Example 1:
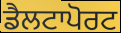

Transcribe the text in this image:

ਡੈਲਟਾਪੋਰਟ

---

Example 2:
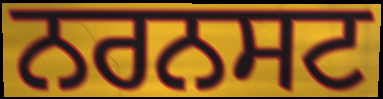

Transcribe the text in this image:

ਨਰਨਸਟ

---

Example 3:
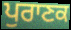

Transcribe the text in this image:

ਪੁਰਾਣਕ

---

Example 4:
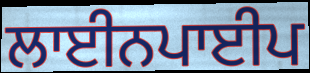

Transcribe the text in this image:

ਲਾਈਨਪਾਈਪ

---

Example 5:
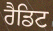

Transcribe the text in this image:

ਰੈਡਿਟ